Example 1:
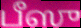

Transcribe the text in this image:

பீஸு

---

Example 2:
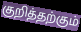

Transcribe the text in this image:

குறித்தற்கும்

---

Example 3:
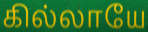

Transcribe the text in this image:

கில்லாயே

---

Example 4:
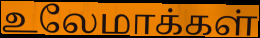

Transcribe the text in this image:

உலேமாக்கள்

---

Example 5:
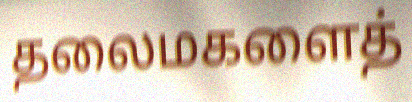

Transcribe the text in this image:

தலைமகளைத்